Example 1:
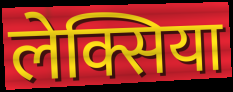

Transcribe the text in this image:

लेक्सिया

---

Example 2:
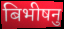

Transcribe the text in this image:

बिभीषनु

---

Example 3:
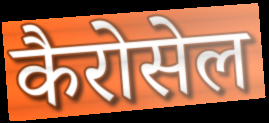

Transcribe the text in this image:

कैरोसेल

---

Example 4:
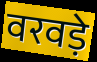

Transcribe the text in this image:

वरवड़े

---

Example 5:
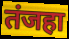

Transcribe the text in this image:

तंजहा